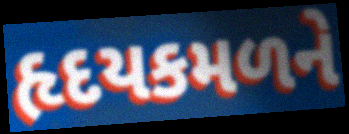
હૃદયકમળને